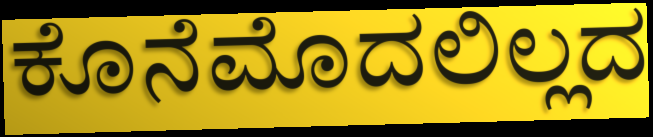
ಕೊನೆಮೊದಲಿಲ್ಲದ